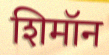
शिमॉन